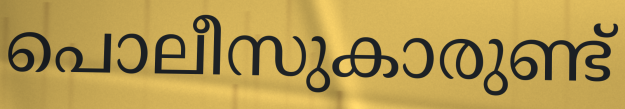
പൊലീസുകാരുണ്ട്